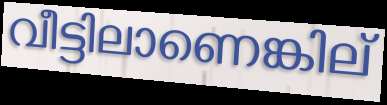
വീട്ടിലാണെങ്കില്